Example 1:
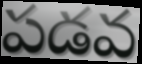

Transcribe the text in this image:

పడవ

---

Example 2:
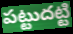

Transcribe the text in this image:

పట్టుదట్టి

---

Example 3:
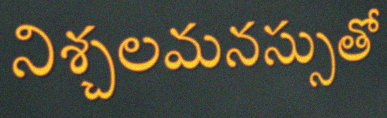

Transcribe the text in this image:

నిశ్చలమనస్సుతో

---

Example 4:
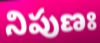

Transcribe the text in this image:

నిపుణః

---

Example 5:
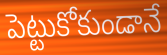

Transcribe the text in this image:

పెట్టుకోకుండానే